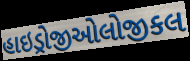
હાઇડ્રોજીઓલોજીકલ